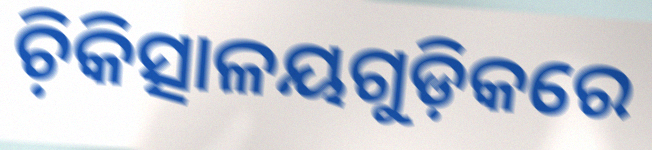
ଚ଼ିକିତ୍ସାଳୟଗୁଡ଼ିକରେ